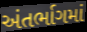
અંતર્ભાગમાં